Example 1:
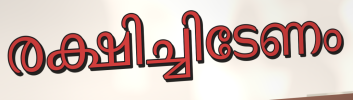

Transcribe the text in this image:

രക്ഷിച്ചിടേണം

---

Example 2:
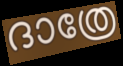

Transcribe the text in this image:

ദാത്രേ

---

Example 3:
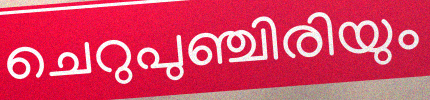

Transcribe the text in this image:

ചെറുപുഞ്ചിരിയും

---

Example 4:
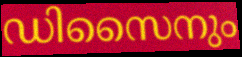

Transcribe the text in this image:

ഡിസൈനും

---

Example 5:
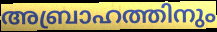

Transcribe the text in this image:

അബ്രാഹത്തിനും